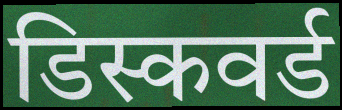
डिस्कवर्ड